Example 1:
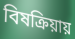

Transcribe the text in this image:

বিষক্রিয়ায়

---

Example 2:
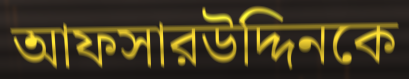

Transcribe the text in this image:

আফসারউদ্দিনকে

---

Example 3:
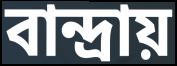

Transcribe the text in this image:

বান্দ্রায়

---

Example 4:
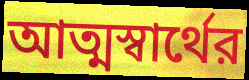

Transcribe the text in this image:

আত্মস্বার্থের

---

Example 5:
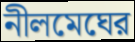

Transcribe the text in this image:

নীলমেঘের